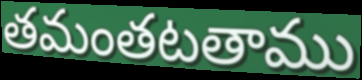
తమంతటతాము